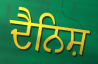
ਦੈਨਿਸ਼